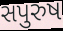
સપુરુષ